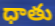
ధాతు